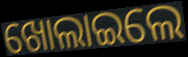
ଖୋଲାଇଲେ